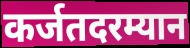
कर्जतदरम्यान